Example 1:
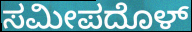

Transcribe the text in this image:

ಸಮೀಪದೊಳ್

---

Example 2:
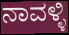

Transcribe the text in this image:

ನಾವಳ್ಳಿ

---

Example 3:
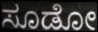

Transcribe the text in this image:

ಸೂಡೋ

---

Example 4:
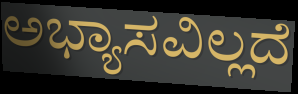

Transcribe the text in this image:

ಅಭ್ಯಾಸವಿಲ್ಲದೆ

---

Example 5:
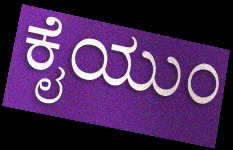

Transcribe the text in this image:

ಕೈಯುಂ